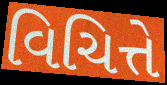
વિચિત્તે